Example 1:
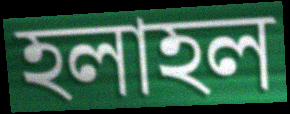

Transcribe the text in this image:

হলাহল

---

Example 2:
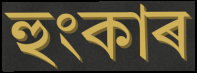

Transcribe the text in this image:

হুংকাৰ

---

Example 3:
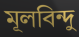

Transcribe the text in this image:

মূলবিন্দু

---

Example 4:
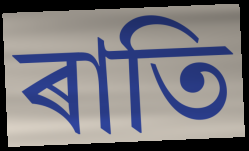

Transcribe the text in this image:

ৰাতি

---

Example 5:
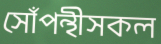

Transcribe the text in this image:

সোঁপন্থীসকল